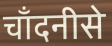
चाँदनीसे